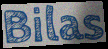
Bilas